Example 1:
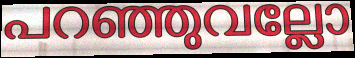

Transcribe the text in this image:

പറഞ്ഞുവല്ലോ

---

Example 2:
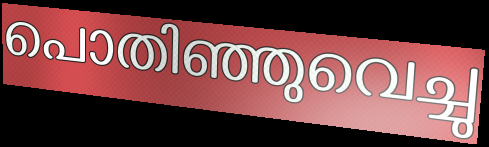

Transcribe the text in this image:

പൊതിഞ്ഞുവെച്ചു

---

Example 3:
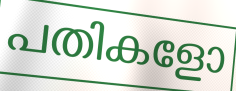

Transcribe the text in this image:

പതികളോ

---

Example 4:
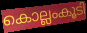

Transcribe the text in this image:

കൊല്ലംകൂടി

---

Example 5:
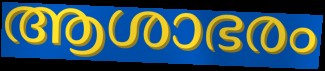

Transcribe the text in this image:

ആശാഭരം